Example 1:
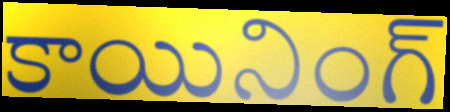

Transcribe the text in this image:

కాయినింగ్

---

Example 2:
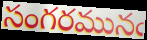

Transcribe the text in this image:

సంగరమునఁ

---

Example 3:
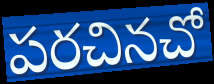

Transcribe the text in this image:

పరచినచో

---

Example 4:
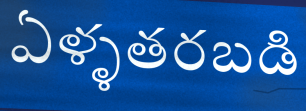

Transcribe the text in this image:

ఏళ్ళతరబడి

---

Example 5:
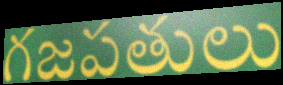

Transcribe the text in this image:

గజపతులు